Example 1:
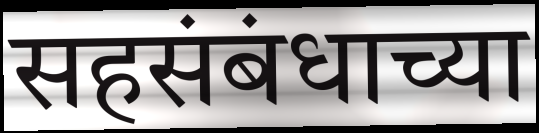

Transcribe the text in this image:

सहसंबंधाच्या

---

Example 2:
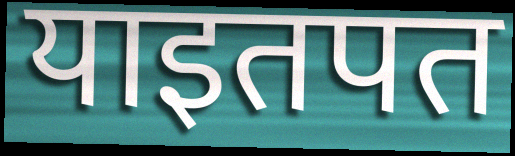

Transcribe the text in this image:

याइतपत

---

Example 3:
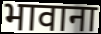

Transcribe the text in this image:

भावाना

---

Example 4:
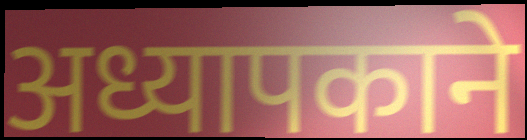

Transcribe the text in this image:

अध्यापकाने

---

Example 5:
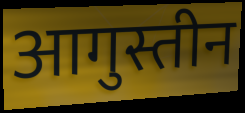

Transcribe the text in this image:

आगुस्तीन